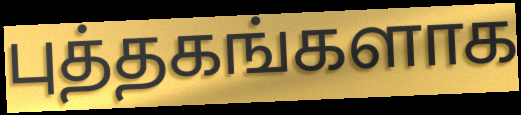
புத்தகங்களாக